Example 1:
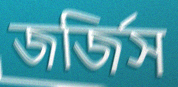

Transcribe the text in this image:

জর্জিস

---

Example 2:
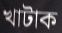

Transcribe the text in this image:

খাটাক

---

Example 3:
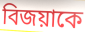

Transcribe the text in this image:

বিজয়াকে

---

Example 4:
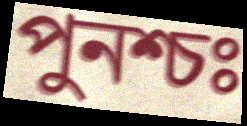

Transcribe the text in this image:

পুনশ্চঃ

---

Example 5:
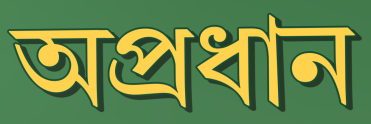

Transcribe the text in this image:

অপ্রধান